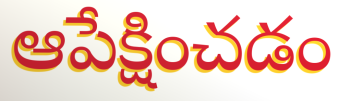
ఆపేక్షించడం